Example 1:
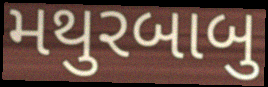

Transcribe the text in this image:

મથુરબાબુ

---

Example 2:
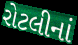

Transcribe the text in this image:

રોટલીનાં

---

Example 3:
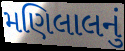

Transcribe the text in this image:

મણિલાલનું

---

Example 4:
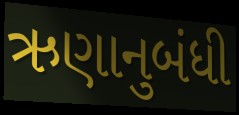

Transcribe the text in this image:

ઋણાનુબંધી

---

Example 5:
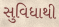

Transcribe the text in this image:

સુવિધાથી